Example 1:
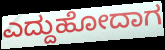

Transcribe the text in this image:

ಎದ್ದುಹೋದಾಗ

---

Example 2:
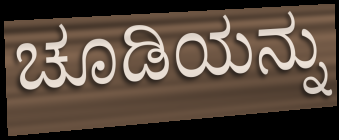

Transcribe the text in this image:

ಚೂಡಿಯನ್ನು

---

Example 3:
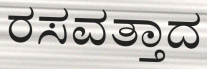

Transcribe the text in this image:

ರಸವತ್ತಾದ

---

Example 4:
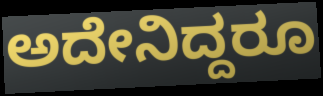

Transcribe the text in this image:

ಅದೇನಿದ್ದರೂ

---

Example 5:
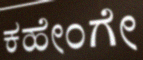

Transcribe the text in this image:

ಕಹೇಂಗೇ